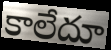
కాలేదూ